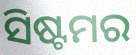
ସିଷ୍ଟମର